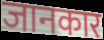
जानकार